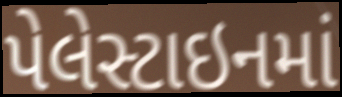
પેલેસ્ટાઇનમાં